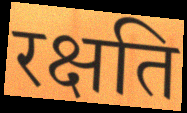
रक्षति